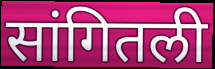
सांगितली